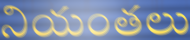
నియంతలు